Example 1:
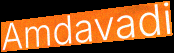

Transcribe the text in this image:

Amdavadi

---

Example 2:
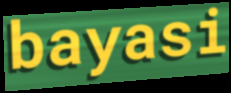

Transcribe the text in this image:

bayasi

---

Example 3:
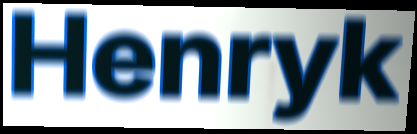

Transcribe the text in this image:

Henryk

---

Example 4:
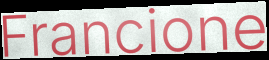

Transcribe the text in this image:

Francione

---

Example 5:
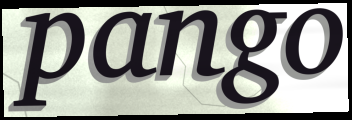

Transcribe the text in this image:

pango